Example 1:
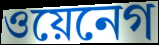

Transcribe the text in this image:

ওয়েনেগ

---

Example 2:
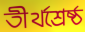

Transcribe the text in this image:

তীর্থশ্রেষ্ঠ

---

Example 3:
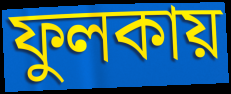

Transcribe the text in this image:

ফুলকায়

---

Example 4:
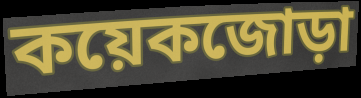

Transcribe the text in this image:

কয়েকজোড়া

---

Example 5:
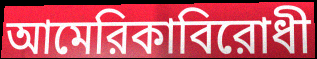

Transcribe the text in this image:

আমেরিকাবিরোধী